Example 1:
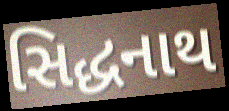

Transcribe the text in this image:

સિદ્ધનાથ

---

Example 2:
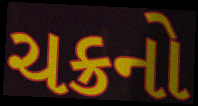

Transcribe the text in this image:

ચક્રનો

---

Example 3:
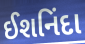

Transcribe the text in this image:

ઈશનિંદા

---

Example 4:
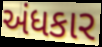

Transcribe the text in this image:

અંધકાર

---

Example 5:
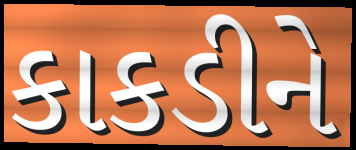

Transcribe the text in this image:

કાકડીને